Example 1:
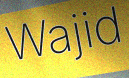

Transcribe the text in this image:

Wajid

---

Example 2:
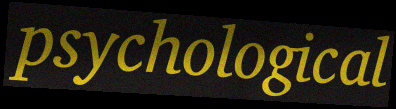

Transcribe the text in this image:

psychological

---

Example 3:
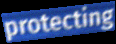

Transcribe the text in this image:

protecting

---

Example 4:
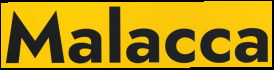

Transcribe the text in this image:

Malacca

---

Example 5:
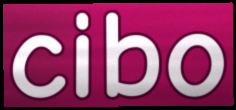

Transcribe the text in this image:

cibo